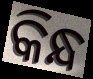
କିନ୍ଧ